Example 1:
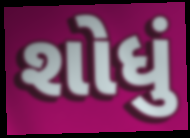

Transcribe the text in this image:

શોધું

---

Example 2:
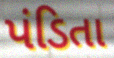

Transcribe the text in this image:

પંડિતા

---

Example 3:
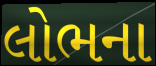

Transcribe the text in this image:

લોભના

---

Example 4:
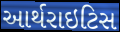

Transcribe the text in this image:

આર્થરાઇટિસ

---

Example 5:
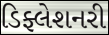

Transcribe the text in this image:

ડિફ્લેશનરી